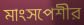
মাংসপেশীর